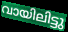
വായിലിട്ടു